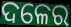
ଦଳେର